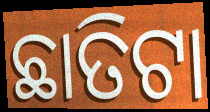
ଛାତିଟା